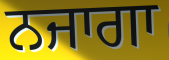
ਨਜਾਗਾ